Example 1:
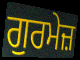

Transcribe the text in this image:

ਗੁਰਮੇਜ਼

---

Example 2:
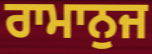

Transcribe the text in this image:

ਰਾਮਾਨੁਜ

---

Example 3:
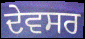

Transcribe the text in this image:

ਦੇਵਸਰ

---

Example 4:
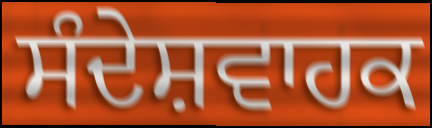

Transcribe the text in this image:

ਸੰਦੇਸ਼ਵਾਹਕ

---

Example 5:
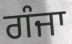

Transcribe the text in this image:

ਗੰਜਾ